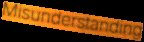
Misunderstanding